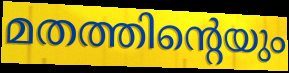
മതത്തിന്റെയും